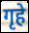
गृहे